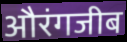
औरंगजीब